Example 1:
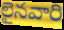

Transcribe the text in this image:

లైనవారి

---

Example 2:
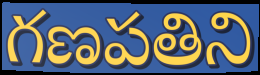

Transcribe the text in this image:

గణపతిని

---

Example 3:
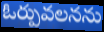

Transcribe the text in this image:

ఓర్పువలనను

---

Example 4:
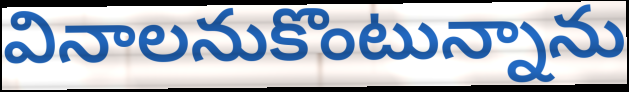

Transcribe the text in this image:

వినాలనుకొంటున్నాను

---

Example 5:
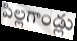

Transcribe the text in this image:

పిల్లగాండ్లు